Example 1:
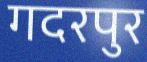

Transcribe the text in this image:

गदरपुर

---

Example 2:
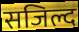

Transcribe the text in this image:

सजिल्द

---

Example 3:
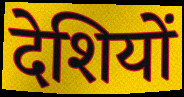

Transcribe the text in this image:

देशियों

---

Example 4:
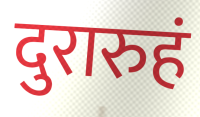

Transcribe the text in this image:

दुरारुहं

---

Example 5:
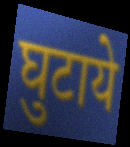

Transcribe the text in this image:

घुटाये